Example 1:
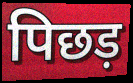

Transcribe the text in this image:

पिछड़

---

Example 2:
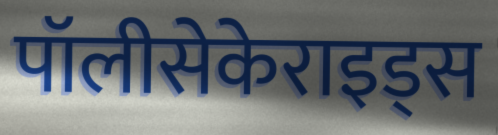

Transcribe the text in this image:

पॉलीसेकेराइड्स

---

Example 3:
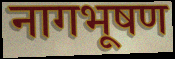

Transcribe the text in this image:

नागभूषण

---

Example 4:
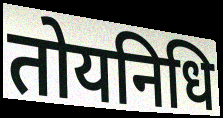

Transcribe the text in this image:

तोयनिधि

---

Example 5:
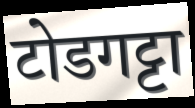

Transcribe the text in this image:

टोडगट्टा